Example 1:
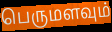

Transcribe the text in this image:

பெருமளவும்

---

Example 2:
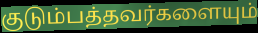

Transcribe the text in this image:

குடும்பத்தவர்களையும்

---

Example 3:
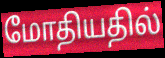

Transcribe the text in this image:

மோதியதில்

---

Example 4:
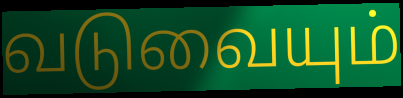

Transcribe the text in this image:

வடுவையும்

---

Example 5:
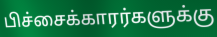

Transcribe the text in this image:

பிச்சைக்காரர்களுக்கு